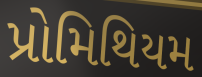
પ્રોમિથિયમ